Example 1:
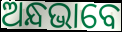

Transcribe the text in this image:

ଅନ୍ଧଭାବେ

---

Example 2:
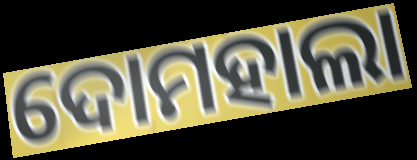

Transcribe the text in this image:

ଦୋମହାଲା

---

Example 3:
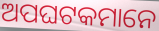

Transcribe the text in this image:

ଅପଘଟକମାନେ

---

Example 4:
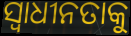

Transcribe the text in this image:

ସ୍ଵାଧୀନତାକୁ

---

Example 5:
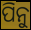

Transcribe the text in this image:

ପିନୁ